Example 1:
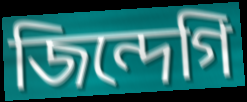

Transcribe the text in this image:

জিন্দেগি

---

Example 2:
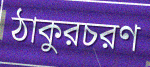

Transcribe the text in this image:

ঠাকুরচরণ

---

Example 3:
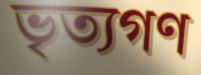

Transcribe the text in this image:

ভৃত্যগণ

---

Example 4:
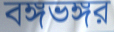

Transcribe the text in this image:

বঙ্গভঙ্গর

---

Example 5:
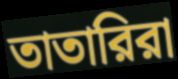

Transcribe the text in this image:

তাতারিরা